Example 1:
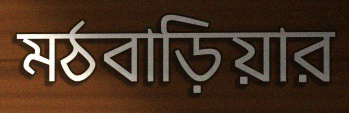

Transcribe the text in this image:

মঠবাড়িয়ার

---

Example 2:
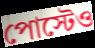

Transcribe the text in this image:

পোস্টেও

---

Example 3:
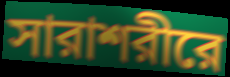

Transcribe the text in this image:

সারাশরীরে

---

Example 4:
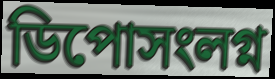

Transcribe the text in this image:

ডিপোসংলগ্ন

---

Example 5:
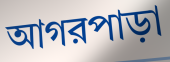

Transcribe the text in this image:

আগরপাড়া